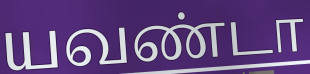
யவண்டா